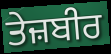
ਤੇਜ਼ਬੀਰ